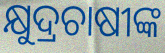
କ୍ଷୁଦ୍ରଚାଷୀଙ୍କ